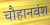
चौहानवंश